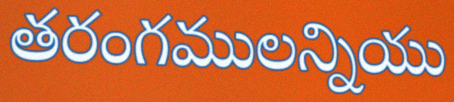
తరంగములన్నియు